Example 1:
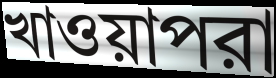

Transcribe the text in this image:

খাওয়াপরা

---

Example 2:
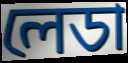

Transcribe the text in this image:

লেডা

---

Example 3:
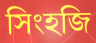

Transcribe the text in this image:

সিংহজি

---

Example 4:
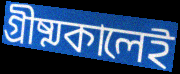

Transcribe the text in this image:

গ্রীষ্মকালেই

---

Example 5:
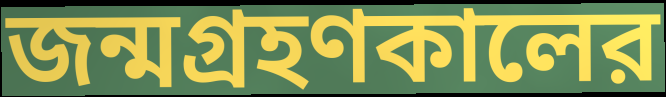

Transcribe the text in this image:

জন্মগ্রহণকালের